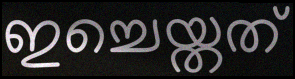
ഇച്ചെയ്തത്